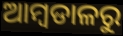
ଆମ୍ବଡାଳରୁ